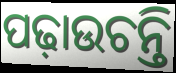
ପଢ଼ାଉଚନ୍ତି